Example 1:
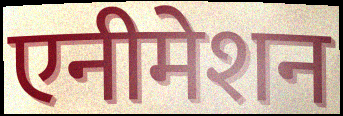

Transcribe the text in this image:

एनीमेशन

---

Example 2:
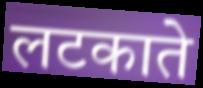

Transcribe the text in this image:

लटकाते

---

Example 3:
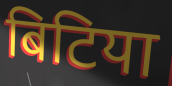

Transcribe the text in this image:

बिटिया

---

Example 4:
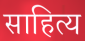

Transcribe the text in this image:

साहित्य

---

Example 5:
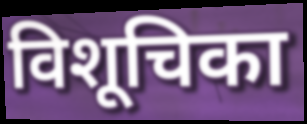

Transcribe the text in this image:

विशूचिका